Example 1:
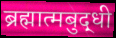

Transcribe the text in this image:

ब्रह्मात्मबुद्धी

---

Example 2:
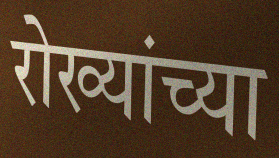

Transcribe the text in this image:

रोख्यांच्या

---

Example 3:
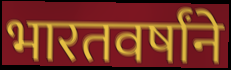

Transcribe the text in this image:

भारतवर्षांने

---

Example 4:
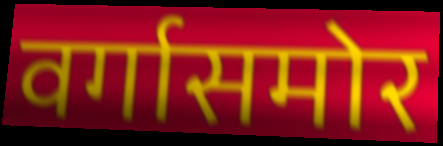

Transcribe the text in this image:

वर्गासमोर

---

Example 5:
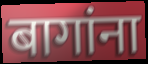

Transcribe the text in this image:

बागांना